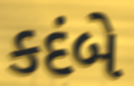
કદંબે